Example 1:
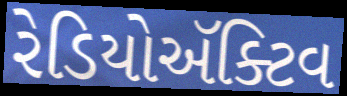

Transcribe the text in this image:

રેડિયોઍક્ટિવ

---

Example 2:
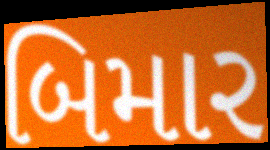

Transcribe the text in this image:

બિમાર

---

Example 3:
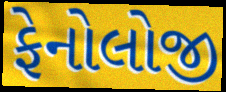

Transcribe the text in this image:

ફેનોલોજી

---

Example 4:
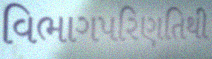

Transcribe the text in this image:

વિભાગપરિણતિથી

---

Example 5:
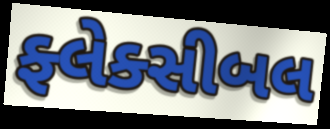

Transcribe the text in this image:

ફ્લેક્સીબલ